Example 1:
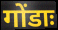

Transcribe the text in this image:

गोंडाः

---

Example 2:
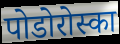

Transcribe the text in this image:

पोडोरोस्का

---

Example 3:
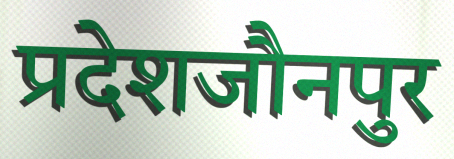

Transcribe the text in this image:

प्रदेशजौनपुर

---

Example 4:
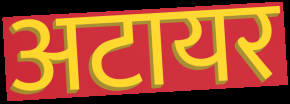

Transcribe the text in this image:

अटायर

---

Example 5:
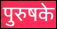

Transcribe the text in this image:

पुरुषके